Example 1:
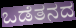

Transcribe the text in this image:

ಒಡೆತನದ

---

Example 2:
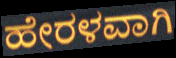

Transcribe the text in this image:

ಹೇರಳವಾಗಿ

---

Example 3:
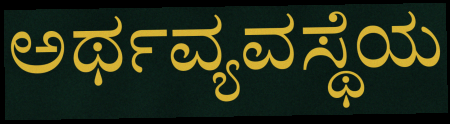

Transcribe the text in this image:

ಅರ್ಥವ್ಯವಸ್ಥೆಯ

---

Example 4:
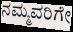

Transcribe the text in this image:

ನಮ್ಮವರಿಗೇ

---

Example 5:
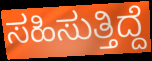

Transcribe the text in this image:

ಸಹಿಸುತ್ತಿದ್ದೆ